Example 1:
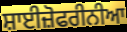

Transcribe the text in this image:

ਸ਼ਾਈਜ਼ੋਫਰੀਨੀਆ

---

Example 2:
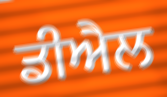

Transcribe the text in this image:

ਡੀਐਲ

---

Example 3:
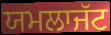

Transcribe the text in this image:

ਯਮਲਾਜੱਟ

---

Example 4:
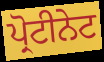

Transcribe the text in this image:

ਪ੍ਰੋਟੀਨੇਟ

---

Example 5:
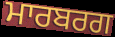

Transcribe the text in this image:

ਮਾਰਬਰਗ